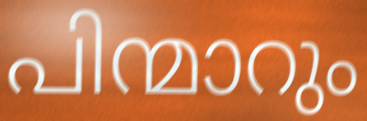
പിന്മാറും